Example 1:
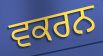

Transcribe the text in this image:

ਵਕਰਨ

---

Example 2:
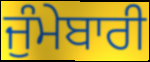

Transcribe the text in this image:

ਜੁੰਮੇਬਾਰੀ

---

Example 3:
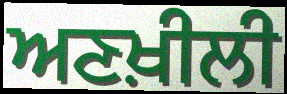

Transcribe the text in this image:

ਅਣਖ਼ੀਲੀ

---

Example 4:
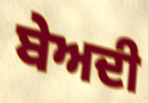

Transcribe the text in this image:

ਬੇਅਦੀ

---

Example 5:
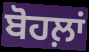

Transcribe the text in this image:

ਬੋਹਲ਼ਾਂ